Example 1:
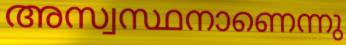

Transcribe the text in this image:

അസ്വസ്ഥനാണെന്നു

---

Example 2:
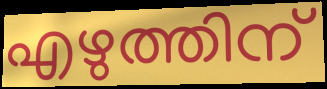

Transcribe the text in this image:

എഴുത്തിന്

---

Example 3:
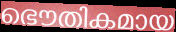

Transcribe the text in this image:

ഭൌതികമായ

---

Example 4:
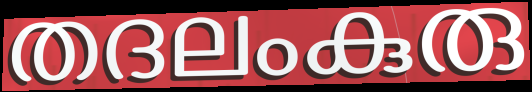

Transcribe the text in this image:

തദലംകുരു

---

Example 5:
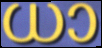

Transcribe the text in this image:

ധാ